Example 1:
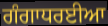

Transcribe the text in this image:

ਗੰਗਾਧਰਈਆ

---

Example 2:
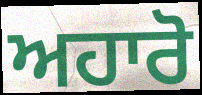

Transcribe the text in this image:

ਅਹਾਰੋ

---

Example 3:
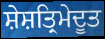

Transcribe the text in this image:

ਸ਼ੇਸ਼ਤ੍ਰਿਮੇਦੂਤ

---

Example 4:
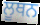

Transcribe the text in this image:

ਲੂਥਨ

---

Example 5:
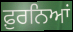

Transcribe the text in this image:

ਫ਼ੁਰਨਿਆਂ